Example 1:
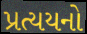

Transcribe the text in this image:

પ્રત્યયનો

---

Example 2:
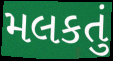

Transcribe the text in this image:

મલકતું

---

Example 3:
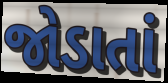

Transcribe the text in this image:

જોડાતાં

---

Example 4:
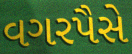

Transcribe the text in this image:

વગરપૈસે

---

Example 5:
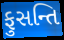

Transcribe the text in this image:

ફુસન્તિ